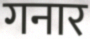
गनार